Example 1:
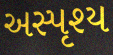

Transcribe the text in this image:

અસ્પૃશ્ય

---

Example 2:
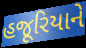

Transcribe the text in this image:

હજૂરિયાને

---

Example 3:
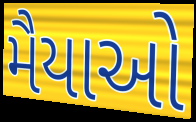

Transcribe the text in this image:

મૈયાઓ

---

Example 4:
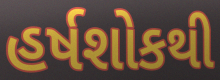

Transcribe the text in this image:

હર્ષશોકથી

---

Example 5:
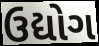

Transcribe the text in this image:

ઉદ્યોગ